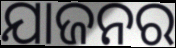
ଯାଜନର